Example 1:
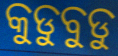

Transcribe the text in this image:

କୁଡୁବୁଡୁ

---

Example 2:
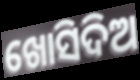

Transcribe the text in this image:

ଖୋସିଦିଅ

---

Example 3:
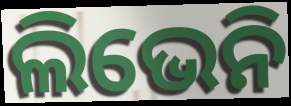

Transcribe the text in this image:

ଲିଭେନି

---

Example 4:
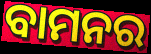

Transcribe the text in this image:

ବାମନର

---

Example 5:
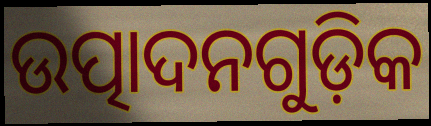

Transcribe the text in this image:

ଉତ୍ପାଦନଗୁଡ଼ିକ